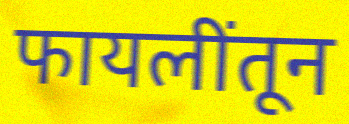
फायलींतून